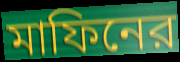
মাফিনের